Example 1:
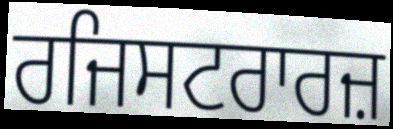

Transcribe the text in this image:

ਰਜਿਸਟਰਾਰਜ਼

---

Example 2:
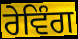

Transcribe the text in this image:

ਰੇਵਿੰਗ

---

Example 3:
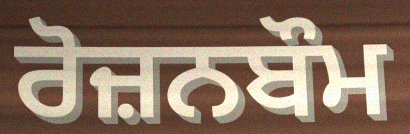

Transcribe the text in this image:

ਰੋਜ਼ਨਬੌਮ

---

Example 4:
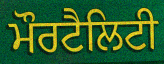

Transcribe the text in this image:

ਮੌਰਟੈਲਿਟੀ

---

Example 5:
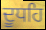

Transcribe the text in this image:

ਦੂਧਹਿ